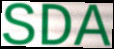
SDA